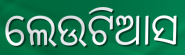
ଲେଉଟିଆସ